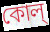
কোল্